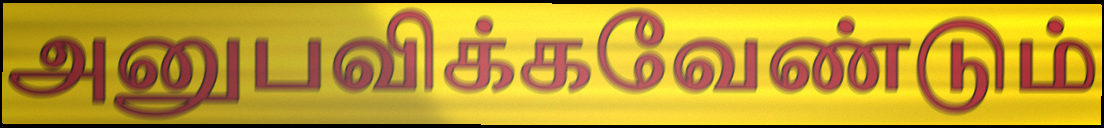
அனுபவிக்கவேண்டும்